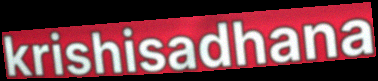
krishisadhana